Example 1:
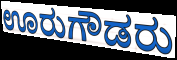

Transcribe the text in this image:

ಊರುಗೌಡರು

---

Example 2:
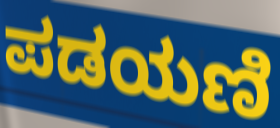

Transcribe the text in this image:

ಪಡಯಣಿ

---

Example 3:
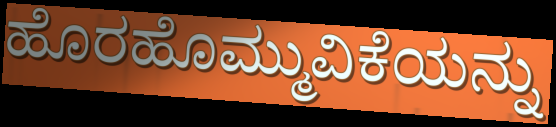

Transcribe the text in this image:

ಹೊರಹೊಮ್ಮುವಿಕೆಯನ್ನು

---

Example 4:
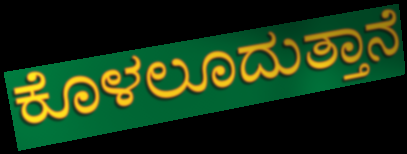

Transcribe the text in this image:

ಕೊಳಲೂದುತ್ತಾನೆ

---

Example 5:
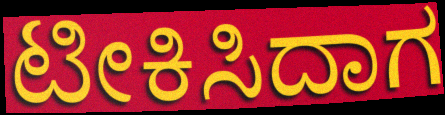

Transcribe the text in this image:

ಟೀಕಿಸಿದಾಗ